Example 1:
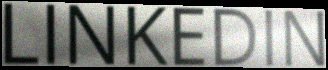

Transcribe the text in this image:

LINKEDIN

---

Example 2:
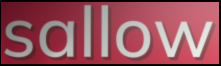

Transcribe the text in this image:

sallow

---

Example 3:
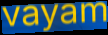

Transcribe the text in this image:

vayam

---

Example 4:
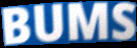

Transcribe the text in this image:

BUMS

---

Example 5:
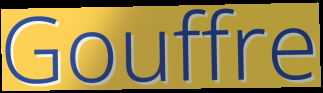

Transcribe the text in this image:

Gouffre